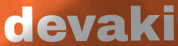
devaki